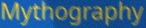
Mythography